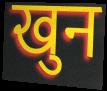
खुन